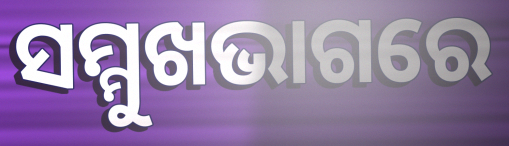
ସମ୍ମୁଖଭାଗରେ